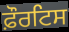
ਫ਼ੌਰਟਿਸ